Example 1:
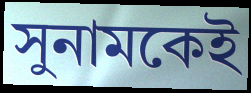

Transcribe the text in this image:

সুনামকেই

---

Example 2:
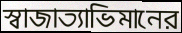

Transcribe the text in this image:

স্বাজাত্যাভিমানের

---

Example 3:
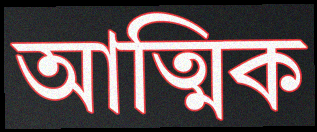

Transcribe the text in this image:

আত্মিক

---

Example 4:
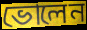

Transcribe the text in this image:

ভোলেন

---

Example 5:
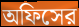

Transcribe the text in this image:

অফিসের